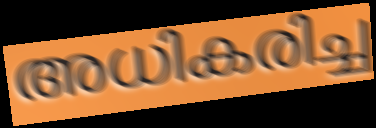
അധികരിച്ച